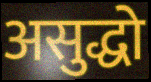
असुद्धो